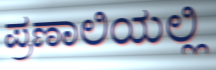
ಪ್ರಣಾಲಿಯಲ್ಲಿ